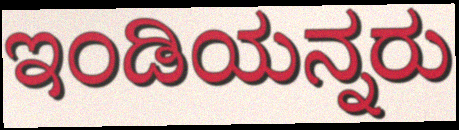
ಇಂಡಿಯನ್ನರು